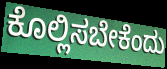
ಕೊಲ್ಲಿಸಬೇಕೆಂದು